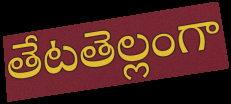
తేటతెల్లంగా